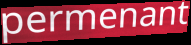
permenant